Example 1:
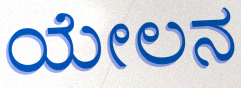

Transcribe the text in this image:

ಯೇಲನ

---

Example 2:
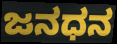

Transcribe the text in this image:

ಜನಧನ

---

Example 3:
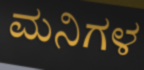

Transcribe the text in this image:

ಮನಿಗಳ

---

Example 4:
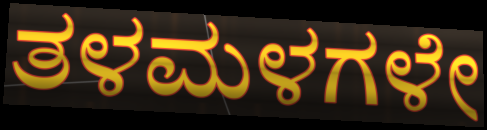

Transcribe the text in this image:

ತಳಮಳಗಳೇ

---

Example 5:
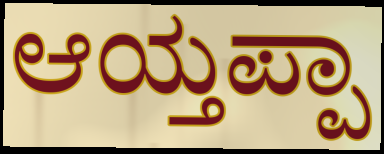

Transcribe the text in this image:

ಆಯ್ತಪ್ಪಾ